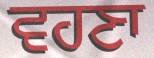
ਵਹਣਾ